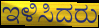
ಇಳಿಸಿದರು